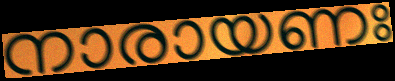
നാരായണഃ